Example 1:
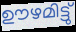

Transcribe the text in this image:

ഊഴമിട്ടു്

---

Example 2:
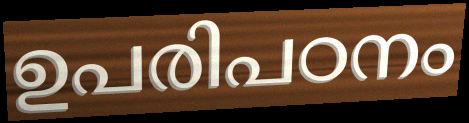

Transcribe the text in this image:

ഉപരിപഠനം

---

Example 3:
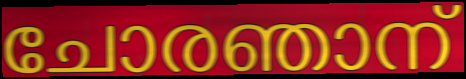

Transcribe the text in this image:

ചോരഞാന്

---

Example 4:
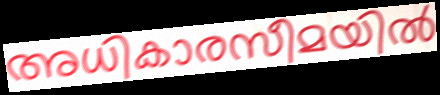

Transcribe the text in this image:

അധികാരസീമയിൽ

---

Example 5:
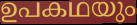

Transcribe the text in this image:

ഉപകഥയും